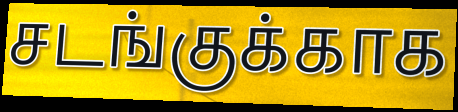
சடங்குக்காக